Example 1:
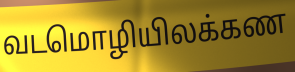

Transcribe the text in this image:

வடமொழியிலக்கண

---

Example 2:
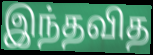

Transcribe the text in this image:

இந்தவித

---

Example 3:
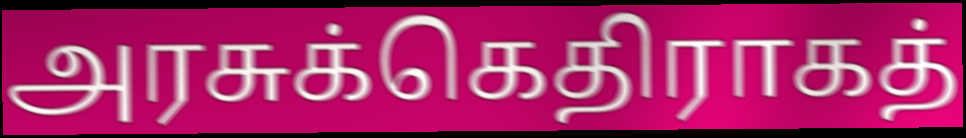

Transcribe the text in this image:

அரசுக்கெதிராகத்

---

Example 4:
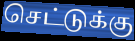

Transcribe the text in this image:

செட்டுக்கு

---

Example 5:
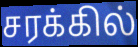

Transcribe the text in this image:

சரக்கில்